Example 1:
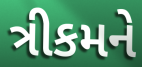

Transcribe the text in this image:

ત્રીકમને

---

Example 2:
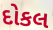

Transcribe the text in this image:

દોકલ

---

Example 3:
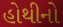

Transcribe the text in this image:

હોથીનો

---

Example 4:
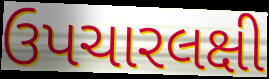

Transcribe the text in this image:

ઉપચારલક્ષી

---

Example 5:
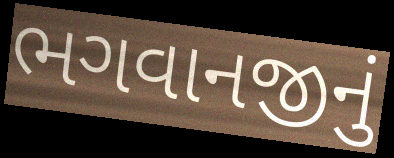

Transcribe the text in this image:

ભગવાનજીનું